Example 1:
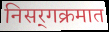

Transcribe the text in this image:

निसर्गक्रमात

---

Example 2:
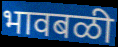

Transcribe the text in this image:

भावबळी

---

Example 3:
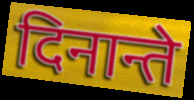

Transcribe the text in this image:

दिनान्ते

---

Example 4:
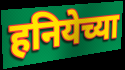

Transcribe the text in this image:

हनियेच्या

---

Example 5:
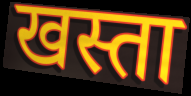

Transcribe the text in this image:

खस्ता